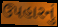
ઉપહારનું